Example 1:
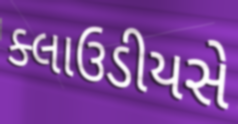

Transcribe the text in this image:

ક્લાઉડીયસે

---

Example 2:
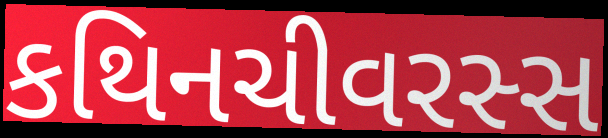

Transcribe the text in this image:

કથિનચીવરસ્સ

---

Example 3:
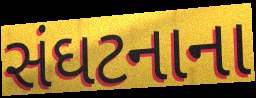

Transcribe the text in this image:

સંઘટનાના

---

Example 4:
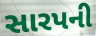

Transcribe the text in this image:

સારપની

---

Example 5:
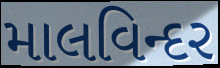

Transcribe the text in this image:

માલવિન્દર